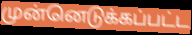
முன்னெடுக்கப்பட்ட